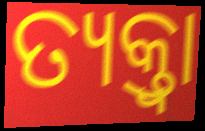
ତ୍ୟକ୍ତ୍ୱା